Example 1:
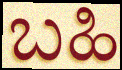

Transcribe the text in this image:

ಬಹಿ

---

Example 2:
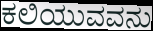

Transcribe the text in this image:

ಕಲಿಯುವವನು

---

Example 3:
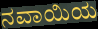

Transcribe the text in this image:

ನವಾಯಿಯ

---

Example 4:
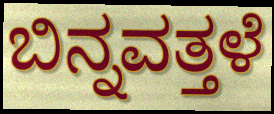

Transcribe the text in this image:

ಬಿನ್ನವತ್ತಳೆ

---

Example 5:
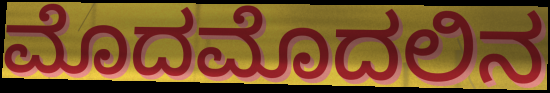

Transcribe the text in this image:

ಮೊದಮೊದಲಿನ